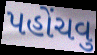
પહોંચવુ